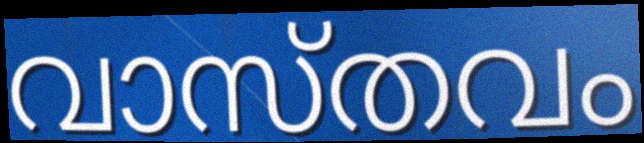
വാസ്തവം